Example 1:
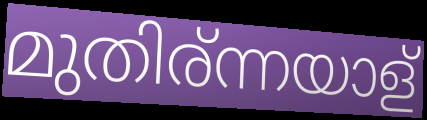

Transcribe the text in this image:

മുതിര്ന്നയാള്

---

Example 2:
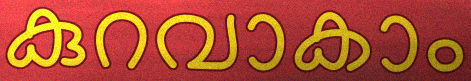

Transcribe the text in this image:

കുറവാകാം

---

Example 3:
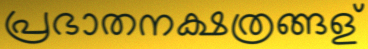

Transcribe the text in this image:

പ്രഭാതനക്ഷത്രങ്ങള്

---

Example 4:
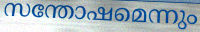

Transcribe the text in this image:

സന്തോഷമെന്നും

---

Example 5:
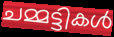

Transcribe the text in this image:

ചമ്മട്ടികൾ